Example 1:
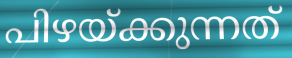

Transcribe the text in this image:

പിഴയ്ക്കുന്നത്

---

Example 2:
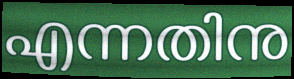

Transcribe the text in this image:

എന്നതിനു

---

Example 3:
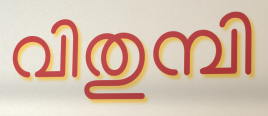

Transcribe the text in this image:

വിതുമ്പി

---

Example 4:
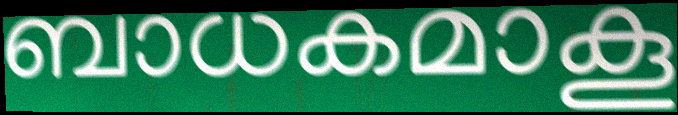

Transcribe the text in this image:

ബാധകമാകൂ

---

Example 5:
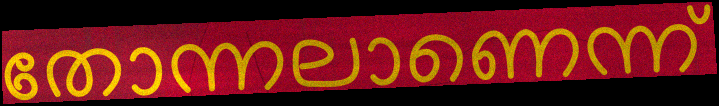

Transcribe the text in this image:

തോന്നലാണെന്ന്